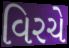
વિરચે